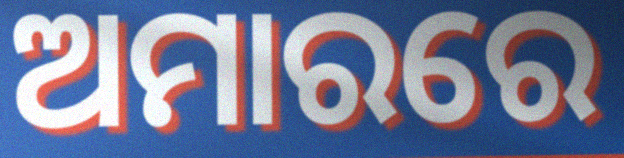
ଅମାରରେ